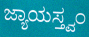
ಜ್ಯಾಯಸ್ತ್ವಂ